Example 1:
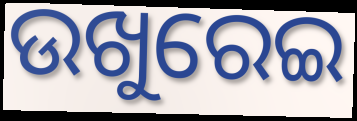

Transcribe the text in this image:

ଉଖୁରେଇ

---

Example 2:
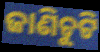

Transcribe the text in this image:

ଜାଣିଚୁଟି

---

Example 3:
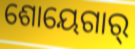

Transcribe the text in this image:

ଶୋୟେଗାର୍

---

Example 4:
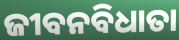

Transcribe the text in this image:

ଜୀବନବିଧାତା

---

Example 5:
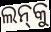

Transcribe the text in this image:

ଲନ୍‌କୁ